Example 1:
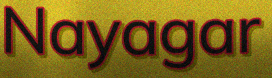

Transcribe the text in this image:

Nayagar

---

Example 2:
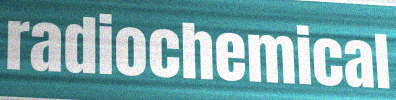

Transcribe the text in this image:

radiochemical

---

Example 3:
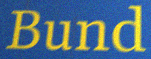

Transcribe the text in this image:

Bund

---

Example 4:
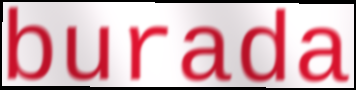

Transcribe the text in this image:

burada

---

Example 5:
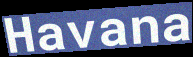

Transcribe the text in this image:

Havana